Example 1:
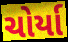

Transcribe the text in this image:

ચોર્યા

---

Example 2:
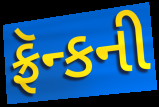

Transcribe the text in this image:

ફ્રૅન્કની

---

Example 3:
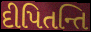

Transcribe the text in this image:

દીપિતન્તિ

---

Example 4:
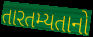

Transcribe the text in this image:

તારતમ્યતાનો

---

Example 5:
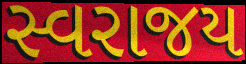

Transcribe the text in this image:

સ્વરાજય